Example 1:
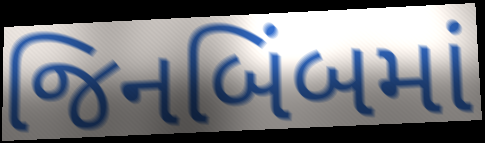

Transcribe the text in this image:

જિનબિંબમાં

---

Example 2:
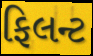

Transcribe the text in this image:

ફિલન્ટ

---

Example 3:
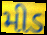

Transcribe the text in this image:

મીડ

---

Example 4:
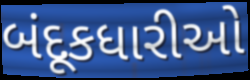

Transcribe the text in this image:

બંદૂકધારીઓ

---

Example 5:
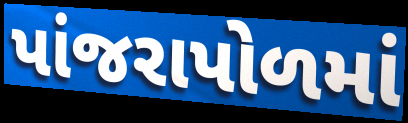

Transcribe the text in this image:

પાંજરાપોળમાં